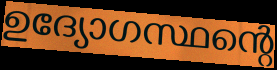
ഉദ്യോഗസ്ഥന്റെ